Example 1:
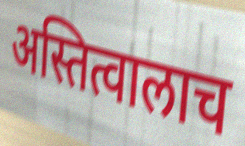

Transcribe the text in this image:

अस्तित्वालाच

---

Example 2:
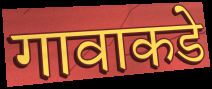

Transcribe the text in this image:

गावाकडे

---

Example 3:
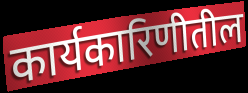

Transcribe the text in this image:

कार्यकारिणीतील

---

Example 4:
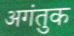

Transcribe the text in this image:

अगंतुक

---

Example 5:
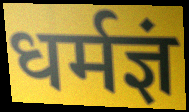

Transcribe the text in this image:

धर्मज्ञं